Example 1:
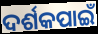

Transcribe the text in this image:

ଦର୍ଶକପାଇଁ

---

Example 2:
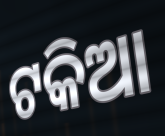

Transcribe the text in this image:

ଟକିଆ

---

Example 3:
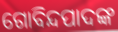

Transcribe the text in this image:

ଗୋବିନ୍ଦପାଦଙ୍କ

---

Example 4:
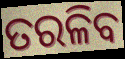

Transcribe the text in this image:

ତରଳିବ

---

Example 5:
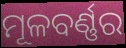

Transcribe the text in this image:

ମୂଳବର୍ଣ୍ଣର